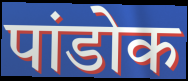
पांडोक